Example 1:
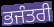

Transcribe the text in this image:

ਭਜੰਤਰੀ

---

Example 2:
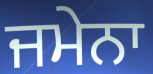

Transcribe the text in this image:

ਜਮੇਨਾ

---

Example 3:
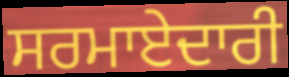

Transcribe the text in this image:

ਸਰਮਾਏਦਾਰੀ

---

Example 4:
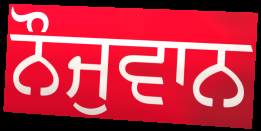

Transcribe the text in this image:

ਨੌਜੁਵਾਨ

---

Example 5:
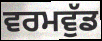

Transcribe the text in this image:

ਵਰਮਵੁੱਡ